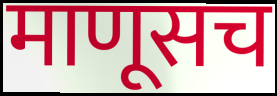
माणूसच